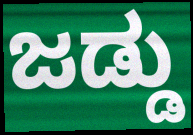
ಜಡ್ಡು